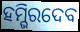
ହମ୍ଭିରଦେବ